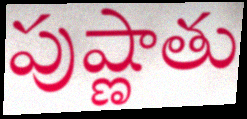
పుష్ణాతు